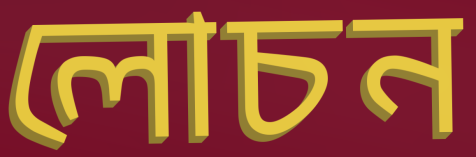
লোচন